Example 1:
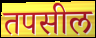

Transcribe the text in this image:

तपसील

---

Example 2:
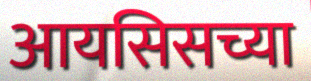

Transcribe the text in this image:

आयसिसच्या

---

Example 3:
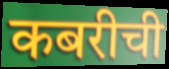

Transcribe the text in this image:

कबरीची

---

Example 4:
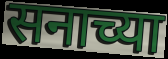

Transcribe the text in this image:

सनाच्या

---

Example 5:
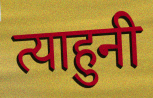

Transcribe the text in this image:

त्याहुनी